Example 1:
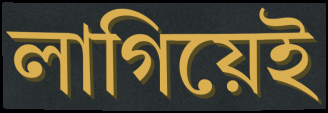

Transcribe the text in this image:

লাগিয়েই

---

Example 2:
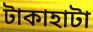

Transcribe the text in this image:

টাকাহাটা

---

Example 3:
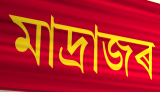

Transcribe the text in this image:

মাদ্ৰাজৰ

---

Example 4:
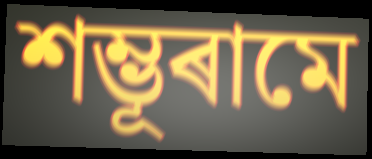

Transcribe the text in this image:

শম্ভূৰামে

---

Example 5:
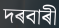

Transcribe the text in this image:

দৰবাৰী